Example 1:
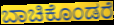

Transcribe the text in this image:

ಬಾಚಿಕೊಂಡರೆ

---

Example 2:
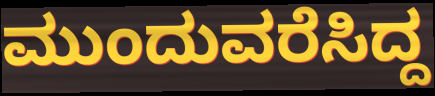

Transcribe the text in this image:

ಮುಂದುವರೆಸಿದ್ದ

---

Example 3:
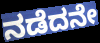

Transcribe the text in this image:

ನಡೆದನೇ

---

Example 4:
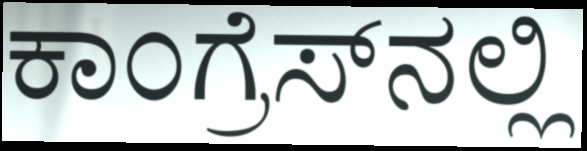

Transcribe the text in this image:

ಕಾಂಗ್ರೆಸ್‌ನಲ್ಲಿ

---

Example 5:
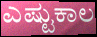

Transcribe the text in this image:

ಎಷ್ಟುಕಾಲ